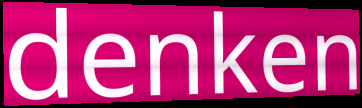
denken